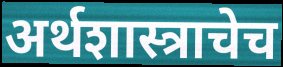
अर्थशास्त्राचेच